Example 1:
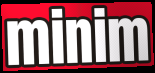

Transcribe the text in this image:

minim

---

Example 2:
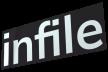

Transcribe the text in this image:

infile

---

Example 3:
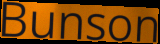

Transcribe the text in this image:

Bunson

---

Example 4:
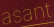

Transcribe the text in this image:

asant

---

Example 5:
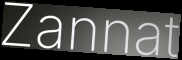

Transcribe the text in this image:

Zannat